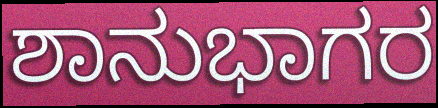
ಶಾನುಭಾಗರ